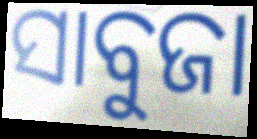
ସାବୁଜା